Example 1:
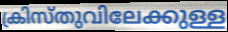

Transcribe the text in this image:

ക്രിസ്തുവിലേക്കുള്ള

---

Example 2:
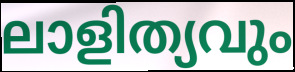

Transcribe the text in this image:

ലാളിത്യവും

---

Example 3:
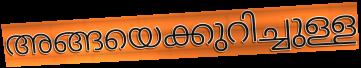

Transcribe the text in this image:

അങ്ങയെക്കുറിച്ചുള്ള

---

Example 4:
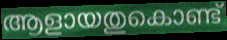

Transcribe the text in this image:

ആളായതുകൊണ്ട്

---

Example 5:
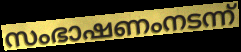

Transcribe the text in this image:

സംഭാഷണംനടന്ന്